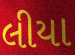
લીયા